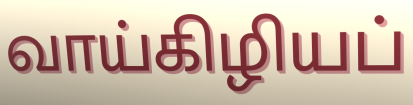
வாய்கிழியப்